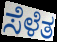
ಸೆಳೆತ